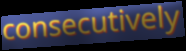
consecutively